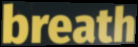
breath